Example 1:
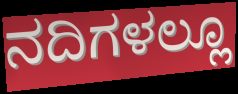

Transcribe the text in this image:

ನದಿಗಳಲ್ಲೂ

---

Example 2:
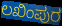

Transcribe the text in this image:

ಲಖಿಂಪುರ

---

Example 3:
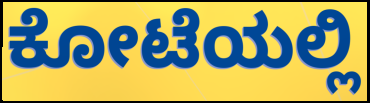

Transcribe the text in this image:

ಕೋಟೆಯಲ್ಲಿ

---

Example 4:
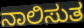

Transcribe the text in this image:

ನಾಲಿಸುತ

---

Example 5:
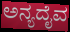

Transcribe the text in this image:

ಅನ್ಯದೈವ